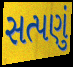
સત્પણું